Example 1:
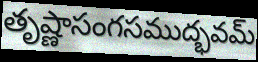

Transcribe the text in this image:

తృష్ణాసంగసముద్భవమ్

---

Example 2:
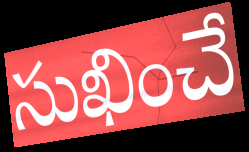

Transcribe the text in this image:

సుఖించే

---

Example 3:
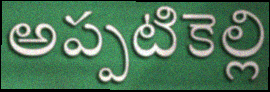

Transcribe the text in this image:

అప్పటికెల్లి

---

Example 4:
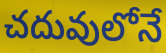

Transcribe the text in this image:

చదువులోనే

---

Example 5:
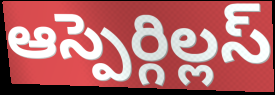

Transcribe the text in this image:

ఆస్పెర్గిల్లస్